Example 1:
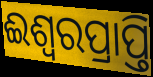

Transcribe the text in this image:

ଈଶ୍ଵରପ୍ରାପ୍ତି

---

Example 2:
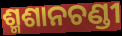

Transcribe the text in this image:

ଶ୍ମଶାନଚଣ୍ଡୀ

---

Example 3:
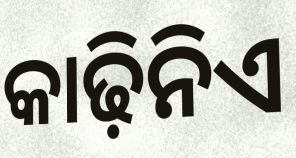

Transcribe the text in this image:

କାଢ଼ିନିଏ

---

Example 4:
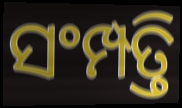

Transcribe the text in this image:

ସଂମ୍ପତ୍ତି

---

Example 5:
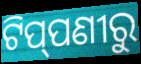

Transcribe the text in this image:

ଟିପ୍‌ପଣୀରୁ